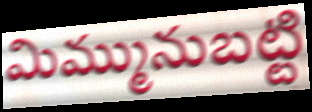
మిమ్మునుబట్టి